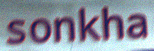
sonkha